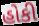
હોકી